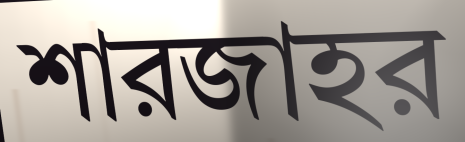
শারজাহর